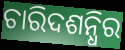
ଚାରିଦଶନ୍ଧିର